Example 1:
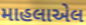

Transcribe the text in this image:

માહલાએલ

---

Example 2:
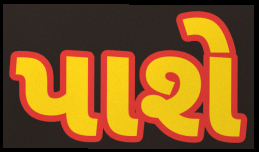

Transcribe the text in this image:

પાશે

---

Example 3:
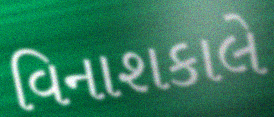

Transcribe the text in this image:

વિનાશકાલે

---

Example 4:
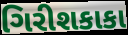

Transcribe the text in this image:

ગિરીશકાકા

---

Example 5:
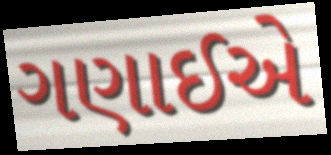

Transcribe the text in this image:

ગણાઈએ